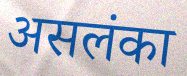
असलंका